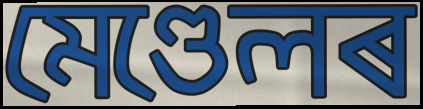
মেণ্ডেলৰ